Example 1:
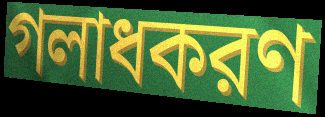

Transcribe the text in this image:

গলাধকরণ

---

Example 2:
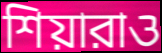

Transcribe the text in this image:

শিয়ারাও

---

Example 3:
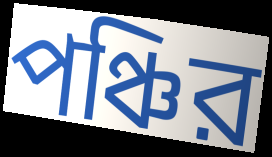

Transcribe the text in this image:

পঞ্চির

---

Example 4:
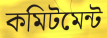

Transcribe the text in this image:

কমিটমেন্ট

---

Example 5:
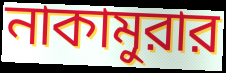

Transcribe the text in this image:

নাকামুরার